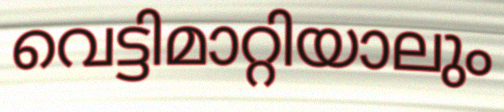
വെട്ടിമാറ്റിയാലും